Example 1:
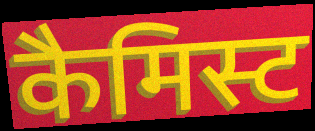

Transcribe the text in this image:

कैमिस्ट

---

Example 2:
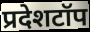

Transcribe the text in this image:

प्रदेशटॉप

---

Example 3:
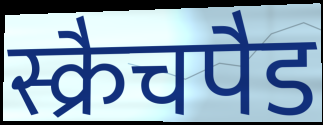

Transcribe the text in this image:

स्क्रैचपैड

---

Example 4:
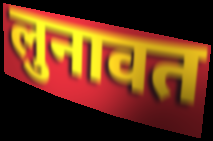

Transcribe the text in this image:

लुनावत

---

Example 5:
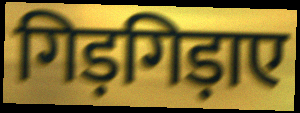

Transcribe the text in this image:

गिड़गिड़ाए